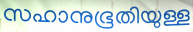
സഹാനുഭൂതിയുള്ള